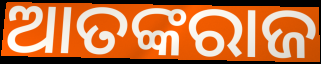
ଆତଙ୍କରାଜ